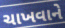
ચાખવાને